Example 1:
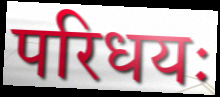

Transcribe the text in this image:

परिधयः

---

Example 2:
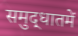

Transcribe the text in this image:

समुद्धातमें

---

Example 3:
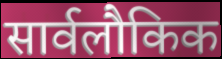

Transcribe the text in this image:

सार्वलौकिक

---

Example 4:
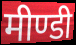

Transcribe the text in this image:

मीण्‍डी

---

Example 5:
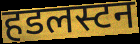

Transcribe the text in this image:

हडलस्टन